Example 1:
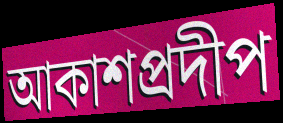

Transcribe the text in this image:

আকাশপ্রদীপ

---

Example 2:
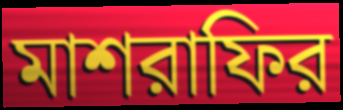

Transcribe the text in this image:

মাশরাফির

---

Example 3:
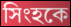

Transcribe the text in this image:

সিংহকে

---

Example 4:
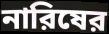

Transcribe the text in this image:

নারিষের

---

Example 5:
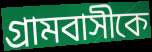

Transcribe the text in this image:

গ্রামবাসীকে